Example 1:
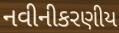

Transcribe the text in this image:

નવીનીકરણીય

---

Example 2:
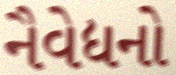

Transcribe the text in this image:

નૈવેદ્યનો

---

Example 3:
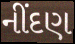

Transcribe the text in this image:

નીંદણ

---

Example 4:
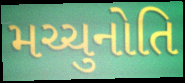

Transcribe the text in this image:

મચ્ચુનોતિ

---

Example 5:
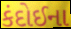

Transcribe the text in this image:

કંદોઈના